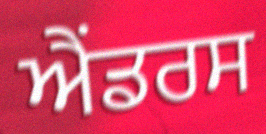
ਐਂਡਰਸ